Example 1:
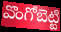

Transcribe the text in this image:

వొంగోబెట్టి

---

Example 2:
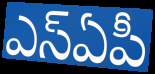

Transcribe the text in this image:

ఎస్ఏపీ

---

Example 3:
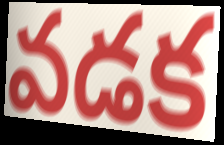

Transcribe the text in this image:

వడక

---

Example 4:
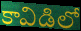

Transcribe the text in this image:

కావిడిలో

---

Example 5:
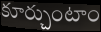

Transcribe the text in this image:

కూర్చుంటాం